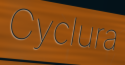
Cyclura